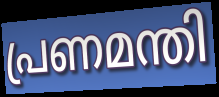
പ്രണമന്തി